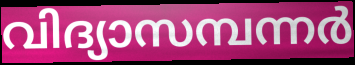
വിദ്യാസമ്പന്നർ